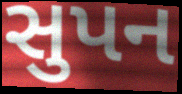
સુપન